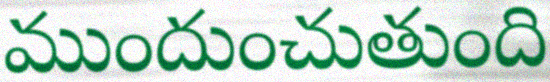
ముందుంచుతుంది